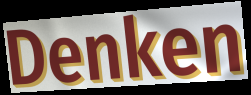
Denken